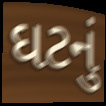
ઘટનું